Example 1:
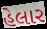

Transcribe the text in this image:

હેલાર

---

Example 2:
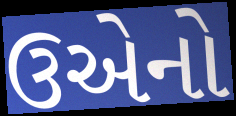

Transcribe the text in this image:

ઉએનો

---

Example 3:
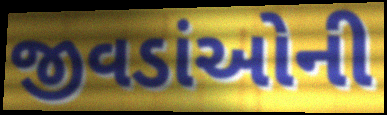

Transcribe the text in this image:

જીવડાંઓની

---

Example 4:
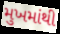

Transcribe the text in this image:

મુખમાંથી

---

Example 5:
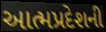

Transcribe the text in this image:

આત્મપ્રદેશની